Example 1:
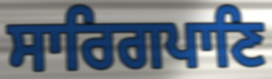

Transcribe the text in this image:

ਸਾਰਿਗਪਾਣਿ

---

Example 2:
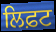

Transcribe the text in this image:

ਲਿਫ਼ਟ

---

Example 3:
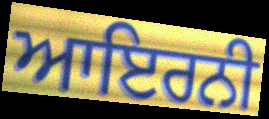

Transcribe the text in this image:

ਆਇਰਨੀ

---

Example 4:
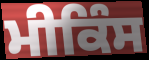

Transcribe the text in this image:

ਮੀਕਿੰਸ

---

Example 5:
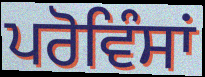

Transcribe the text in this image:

ਪਰੋਵਿੰਸਾਂ